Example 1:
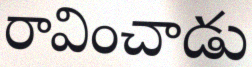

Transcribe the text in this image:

రావించాడు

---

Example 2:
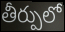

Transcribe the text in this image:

తీర్పులో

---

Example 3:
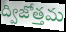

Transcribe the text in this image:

ద్విజోత్తమ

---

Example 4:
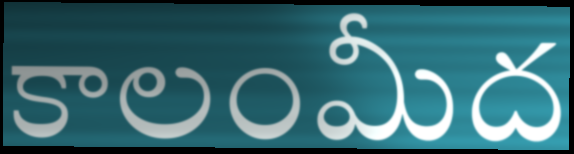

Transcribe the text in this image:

కాలంమీద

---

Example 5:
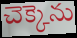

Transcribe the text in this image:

చెక్కెను